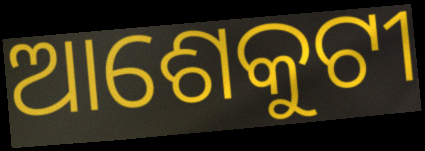
ଆଶେକୁଟୀ